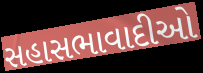
સહાસભાવાદીઓ